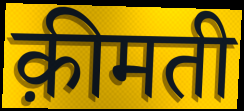
क़ीमती